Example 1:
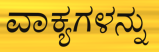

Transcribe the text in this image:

ವಾಕ್ಯಗಳನ್ನು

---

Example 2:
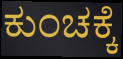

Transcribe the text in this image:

ಕುಂಚಕ್ಕೆ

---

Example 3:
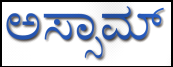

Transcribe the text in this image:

ಅಸ್ಸಾಮ್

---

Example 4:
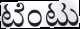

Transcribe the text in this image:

ಟೆಂಟು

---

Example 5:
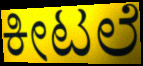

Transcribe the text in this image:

ಕೀಟಲೆ